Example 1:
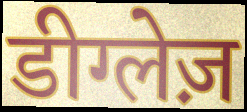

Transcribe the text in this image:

डीग्लेज़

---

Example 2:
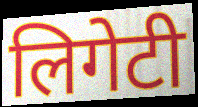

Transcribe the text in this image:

लिगेटी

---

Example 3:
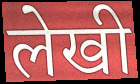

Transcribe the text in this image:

लेखी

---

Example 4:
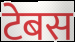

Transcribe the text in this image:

टेबस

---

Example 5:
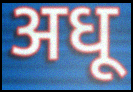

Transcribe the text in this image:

अधू